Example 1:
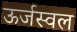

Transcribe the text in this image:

ऊर्जस्वल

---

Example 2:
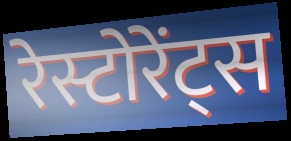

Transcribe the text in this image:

रेस्‍टोरेंट्स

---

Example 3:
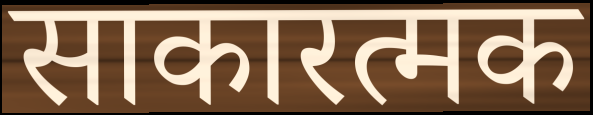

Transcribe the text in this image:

साकारत्मक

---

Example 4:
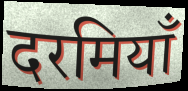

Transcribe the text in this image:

दरमियाँ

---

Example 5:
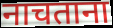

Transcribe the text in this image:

नाचताना